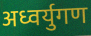
अध्वर्युगण